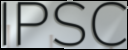
IPSC